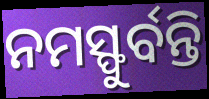
ନମସ୍ଫୁର୍ବନ୍ତି